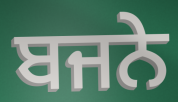
ਬਜਨੇ